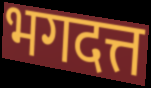
भगदत्त